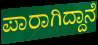
ಪಾರಾಗಿದ್ದಾನೆ